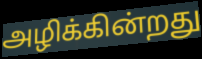
அழிக்கின்றது